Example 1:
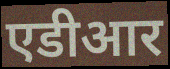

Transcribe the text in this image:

एडीआर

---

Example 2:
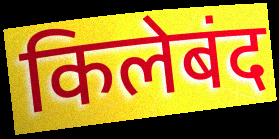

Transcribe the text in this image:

किलेबंद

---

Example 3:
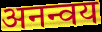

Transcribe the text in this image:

अनन्वय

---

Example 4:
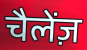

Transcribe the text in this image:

चैलेंज़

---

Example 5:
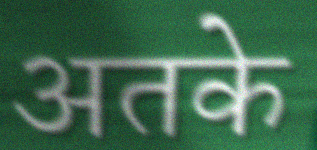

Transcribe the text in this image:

अतके